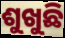
ଶୁଖୁଛି